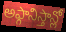
అఫ్గానిస్తాన్లో